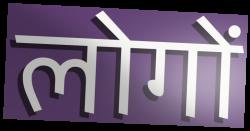
लोगों